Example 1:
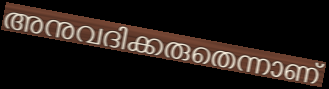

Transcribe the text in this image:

അനുവദിക്കരുതെന്നാണ്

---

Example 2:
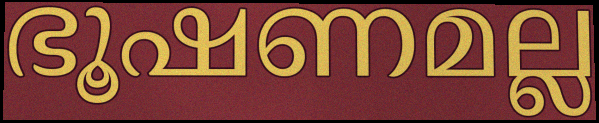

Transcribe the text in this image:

ഭൂഷണമല്ല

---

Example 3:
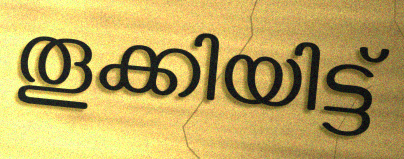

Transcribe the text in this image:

തൂക്കിയിട്ട്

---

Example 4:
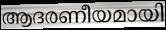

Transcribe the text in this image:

ആദരണീയമായി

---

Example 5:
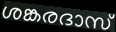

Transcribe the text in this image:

ശങ്കരദാസ്